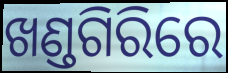
ଖଣ୍ଡଗିରିରେ